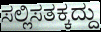
ಸಲ್ಲಿಸತಕ್ಕದ್ದು